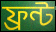
ফ্ৰন্ট